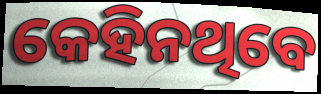
କେହିନଥିବେ